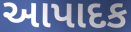
આપાદક